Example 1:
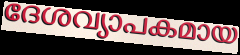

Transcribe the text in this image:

ദേശവ്യാപകമായ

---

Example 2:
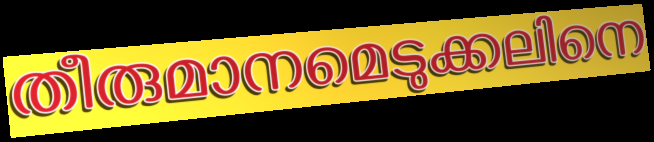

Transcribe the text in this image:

തീരുമാനമെടുക്കലിനെ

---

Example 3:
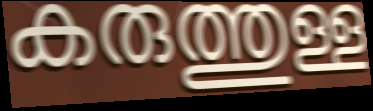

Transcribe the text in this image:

കരുത്തുള്ള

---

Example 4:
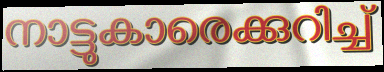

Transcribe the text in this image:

നാട്ടുകാരെക്കുറിച്ച്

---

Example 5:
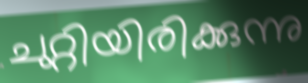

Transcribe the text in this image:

ചുറ്റിയിരിക്കുന്നു